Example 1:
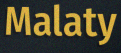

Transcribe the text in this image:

Malaty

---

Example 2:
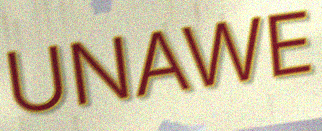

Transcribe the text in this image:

UNAWE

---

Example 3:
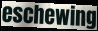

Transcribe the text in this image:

eschewing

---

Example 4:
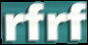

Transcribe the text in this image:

rfrf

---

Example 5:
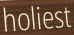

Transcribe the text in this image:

holiest